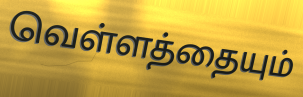
வெள்ளத்தையும்